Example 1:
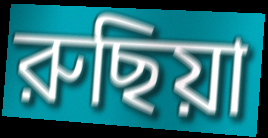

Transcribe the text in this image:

ৰুছিয়া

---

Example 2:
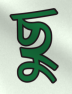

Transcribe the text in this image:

ছু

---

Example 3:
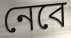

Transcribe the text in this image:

নেবে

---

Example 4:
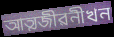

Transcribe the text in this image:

আত্মজীৱনীখন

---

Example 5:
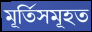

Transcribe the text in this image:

মূৰ্তিসমূহত